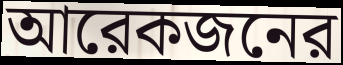
আরেকজনের